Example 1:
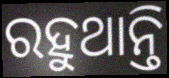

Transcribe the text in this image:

ରହୁଥାନ୍ତି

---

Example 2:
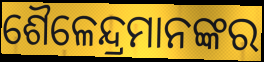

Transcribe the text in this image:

ଶୈଳେନ୍ଦ୍ରମାନଙ୍କର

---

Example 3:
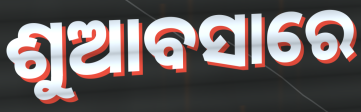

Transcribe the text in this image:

ଶୁଆବସାରେ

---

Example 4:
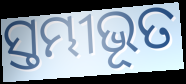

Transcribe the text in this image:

ସ୍ତମ୍ଭୀଭୂତ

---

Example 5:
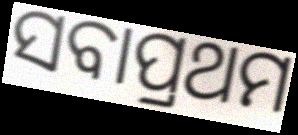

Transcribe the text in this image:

ସବାପ୍ରଥମ